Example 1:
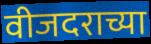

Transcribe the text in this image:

वीजदराच्या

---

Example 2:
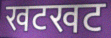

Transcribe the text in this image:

खटखट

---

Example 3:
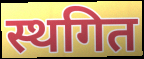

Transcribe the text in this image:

स्थगित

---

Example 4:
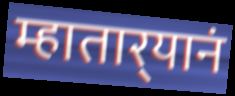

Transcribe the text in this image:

म्हातार्‍यानं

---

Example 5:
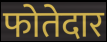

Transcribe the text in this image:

फोतेदार